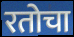
रतोचा